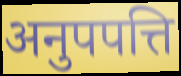
अनुपपत्ति